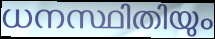
ധനസ്ഥിതിയും